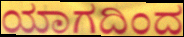
ಯಾಗದಿಂದ